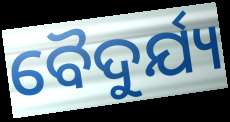
ବୈଦୁର୍ଯ୍ୟ